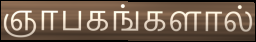
ஞாபகங்களால்